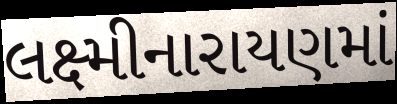
લક્ષ્મીનારાયણમાં